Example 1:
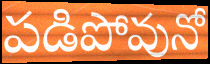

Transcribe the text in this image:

పడిపోవునో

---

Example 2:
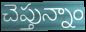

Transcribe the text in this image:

చెప్తున్నాం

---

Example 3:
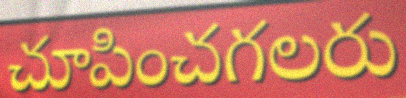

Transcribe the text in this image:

చూపించగలరు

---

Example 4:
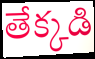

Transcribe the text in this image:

తేక్కడి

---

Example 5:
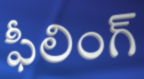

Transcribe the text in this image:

ఫీలింగ్